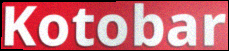
Kotobar